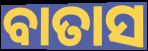
ବାତାସ